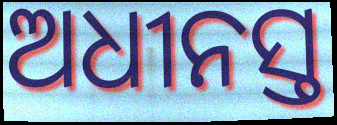
ଅଧୀନସ୍ତ